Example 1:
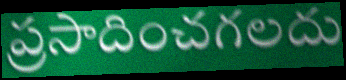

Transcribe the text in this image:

ప్రసాదించగలదు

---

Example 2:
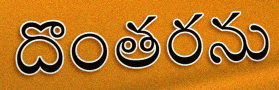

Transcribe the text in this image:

దొంతరను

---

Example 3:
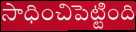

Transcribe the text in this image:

సాధించిపెట్టింది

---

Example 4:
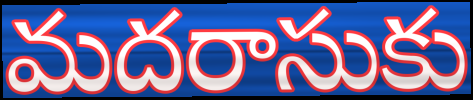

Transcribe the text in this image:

మదరాసుకు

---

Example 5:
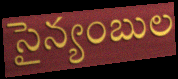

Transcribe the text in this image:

సైన్యంబుల